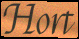
Hort